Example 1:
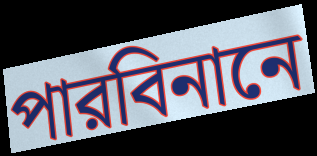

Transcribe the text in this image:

পারবিনানে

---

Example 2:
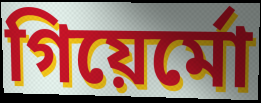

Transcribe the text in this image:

গিয়ের্মো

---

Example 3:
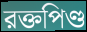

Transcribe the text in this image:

রক্তপিণ্ড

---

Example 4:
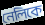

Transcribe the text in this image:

নেলিকে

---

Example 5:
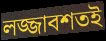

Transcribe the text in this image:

লজ্জাবশতই